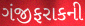
ગંજીફરાકની